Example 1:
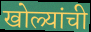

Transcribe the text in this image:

खोल्यांची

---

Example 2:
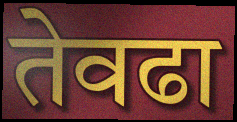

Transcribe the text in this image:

तेवढा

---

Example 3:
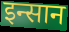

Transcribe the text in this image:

इन्सान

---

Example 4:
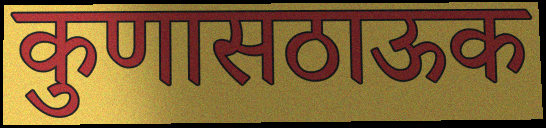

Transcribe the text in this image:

कुणासठाऊक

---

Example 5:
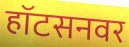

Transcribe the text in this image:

हॉटसनवर